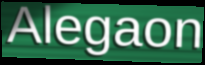
Alegaon